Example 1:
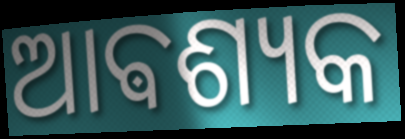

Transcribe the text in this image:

ଆଵଶ୍ୟକ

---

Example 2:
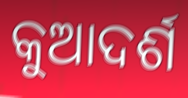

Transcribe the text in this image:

କୁଆଦର୍ଶ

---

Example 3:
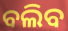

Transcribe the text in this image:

ବଲିବ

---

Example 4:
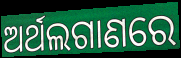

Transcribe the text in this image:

ଅର୍ଥଲଗାଣରେ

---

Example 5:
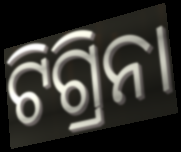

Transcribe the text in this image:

ଟିଗ୍ରିନା